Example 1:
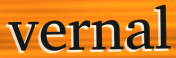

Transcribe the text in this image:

vernal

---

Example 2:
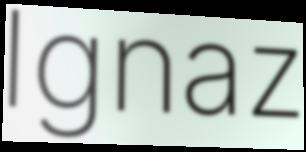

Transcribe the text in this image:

Ignaz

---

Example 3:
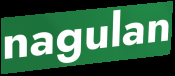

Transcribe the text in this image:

nagulan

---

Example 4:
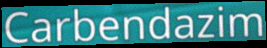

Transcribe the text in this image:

Carbendazim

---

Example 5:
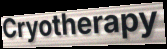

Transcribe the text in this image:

Cryotherapy